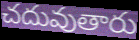
చదువుతారు